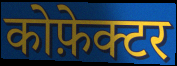
कोफ़ेक्टर